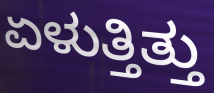
ಏಳುತ್ತಿತ್ತು